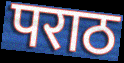
पराठ